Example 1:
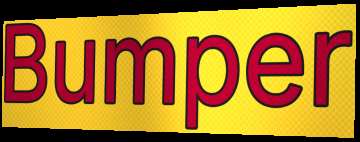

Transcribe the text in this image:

Bumper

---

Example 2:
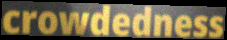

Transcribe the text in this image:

crowdedness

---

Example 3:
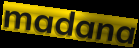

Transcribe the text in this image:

madana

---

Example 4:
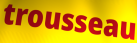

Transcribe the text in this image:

trousseau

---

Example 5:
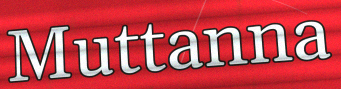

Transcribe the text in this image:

Muttanna